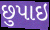
છુપાઇ